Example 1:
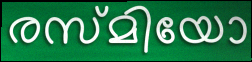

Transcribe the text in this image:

രസ്മിയോ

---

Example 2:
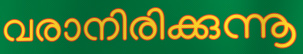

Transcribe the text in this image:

വരാനിരിക്കുന്നൂ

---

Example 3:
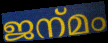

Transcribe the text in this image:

ജന്‌മം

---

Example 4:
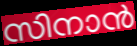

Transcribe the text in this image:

സിനാൻ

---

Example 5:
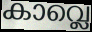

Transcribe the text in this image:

കാവ്ലെ